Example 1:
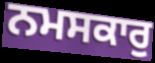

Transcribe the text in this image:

ਨਮਸਕਾਰੁ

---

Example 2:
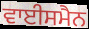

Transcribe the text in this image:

ਵਾਈਸਮੈਨ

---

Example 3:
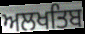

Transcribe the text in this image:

ਅਲਖਤਿਬ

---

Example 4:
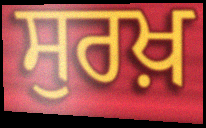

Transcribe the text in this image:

ਸੁਰਖ਼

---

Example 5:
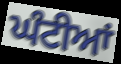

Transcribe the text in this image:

ਘੰਟੀਆਂ